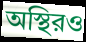
অস্থিরও